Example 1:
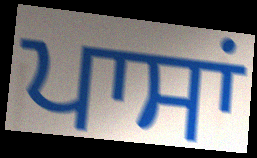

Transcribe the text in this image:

ਪਾਸਾਂ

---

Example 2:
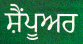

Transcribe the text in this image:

ਸ਼ੈਂਪੂਅਰ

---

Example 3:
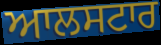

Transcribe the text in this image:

ਆਲਸਟਾਰ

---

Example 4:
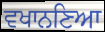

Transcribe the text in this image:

ਵਖਾਨਣਿਆ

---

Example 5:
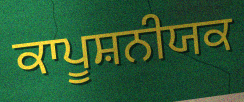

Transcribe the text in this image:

ਕਾਪੂਸ਼ਨੀਯਕ